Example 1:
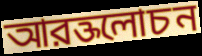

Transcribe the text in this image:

আরক্তলোচন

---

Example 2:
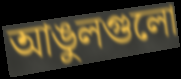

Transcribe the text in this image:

আঙুলগুলো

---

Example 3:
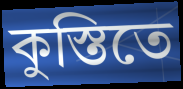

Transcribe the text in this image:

কুস্তিতে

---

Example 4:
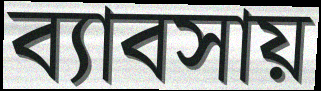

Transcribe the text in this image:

ব্যাবসায়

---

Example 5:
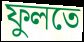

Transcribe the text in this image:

ফুলতে